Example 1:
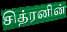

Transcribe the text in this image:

சித்ரனின்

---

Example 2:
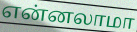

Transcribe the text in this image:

என்னலாமா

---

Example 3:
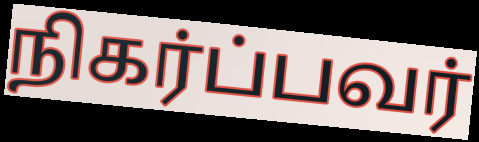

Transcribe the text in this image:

நிகர்ப்பவர்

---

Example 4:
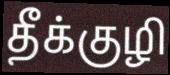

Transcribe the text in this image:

தீக்குழி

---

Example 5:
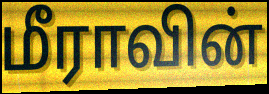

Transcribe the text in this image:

மீராவின்